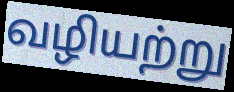
வழியற்று